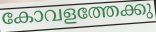
കോവളത്തേക്കു